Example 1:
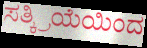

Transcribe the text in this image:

ಸತ್ಕ್ರಿಯೆಯಿಂದ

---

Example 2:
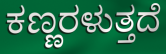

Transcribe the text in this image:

ಕಣ್ಣರಳುತ್ತದೆ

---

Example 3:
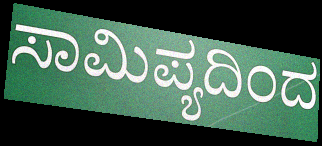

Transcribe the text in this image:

ಸಾಮಿಪ್ಯದಿಂದ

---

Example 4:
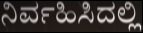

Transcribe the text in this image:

ನಿರ್ವಹಿಸಿದಲ್ಲಿ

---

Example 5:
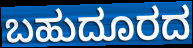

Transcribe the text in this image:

ಬಹುದೂರದ